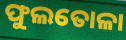
ଫୁଲତୋଳା